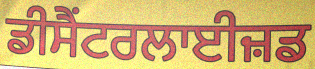
ਡੀਸੈਂਟਰਲਾਈਜ਼ਡ